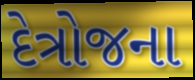
દેત્રોજના